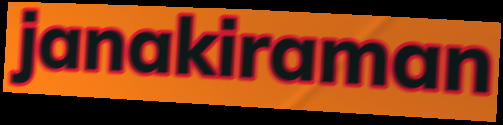
janakiraman